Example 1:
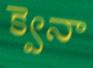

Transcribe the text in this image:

క్వెనా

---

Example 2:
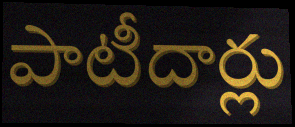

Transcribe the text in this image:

పాటీదార్లు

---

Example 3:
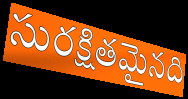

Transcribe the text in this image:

సురక్షితమైనది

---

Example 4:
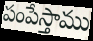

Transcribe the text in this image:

పంపేస్తాము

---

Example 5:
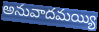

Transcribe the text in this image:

అనువాదమయ్యి